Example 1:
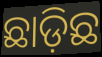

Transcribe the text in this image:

ଛାଡ଼ିଛ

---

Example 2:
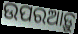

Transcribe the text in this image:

ଉପରଆଡ଼ୁ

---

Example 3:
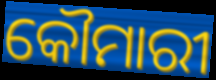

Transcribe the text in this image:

କୌମାରୀ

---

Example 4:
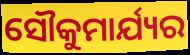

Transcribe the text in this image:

ସୌକୁମାର୍ଯ୍ୟର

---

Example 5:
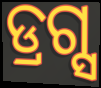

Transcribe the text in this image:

ଡ୍ରଗ୍ସ